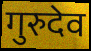
गुरुदेव